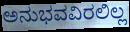
ಅನುಭವವಿರಲಿಲ್ಲ